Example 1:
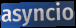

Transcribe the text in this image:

asyncio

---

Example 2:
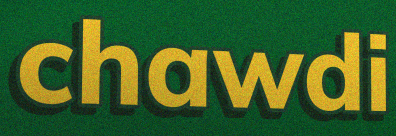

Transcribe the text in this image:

chawdi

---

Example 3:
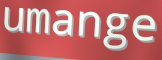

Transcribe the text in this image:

umange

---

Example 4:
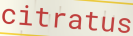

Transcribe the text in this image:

citratus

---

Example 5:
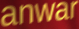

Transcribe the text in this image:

anwar